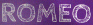
ROMEO